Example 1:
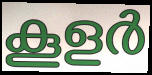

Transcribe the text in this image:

കൂളർ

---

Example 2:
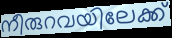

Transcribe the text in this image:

നീരുറവയിലേക്ക്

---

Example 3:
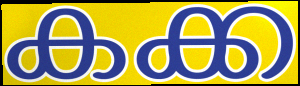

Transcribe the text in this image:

കക്ക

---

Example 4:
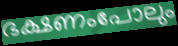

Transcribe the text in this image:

ഭക്ഷണംപോലും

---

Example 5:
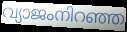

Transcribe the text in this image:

വ്യാജംനിറഞ്ഞ